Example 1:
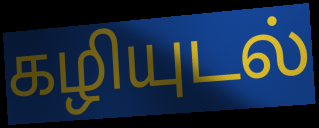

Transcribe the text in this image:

கழியுடல்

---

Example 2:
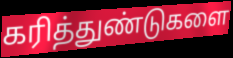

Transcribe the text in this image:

கரித்துண்டுகளை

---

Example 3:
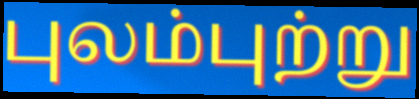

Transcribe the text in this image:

புலம்புற்று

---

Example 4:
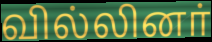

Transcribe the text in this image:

வில்லினர்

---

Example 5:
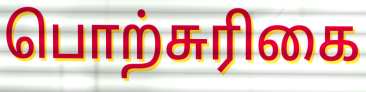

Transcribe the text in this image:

பொற்சுரிகை